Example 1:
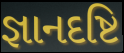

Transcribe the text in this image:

જ્ઞાનદષ્ટિ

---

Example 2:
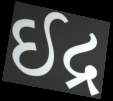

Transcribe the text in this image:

ઈદ્ર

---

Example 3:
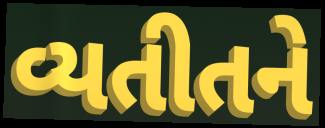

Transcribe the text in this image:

વ્યતીતને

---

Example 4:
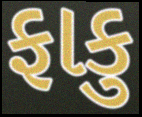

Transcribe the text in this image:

ફાકુ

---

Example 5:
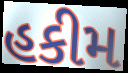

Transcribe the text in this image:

હકીમ